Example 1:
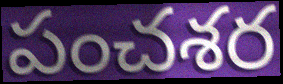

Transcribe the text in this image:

పంచశర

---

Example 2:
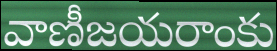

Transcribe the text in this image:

వాణీజయరాంకు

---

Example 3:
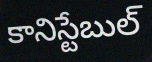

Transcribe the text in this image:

కానిస్టేబుల్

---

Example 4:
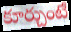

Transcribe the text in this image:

కూర్చుంటే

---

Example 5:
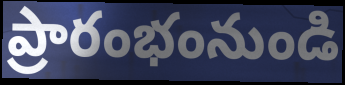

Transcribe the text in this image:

ప్రారంభంనుండి